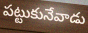
పట్టుకునేవాడు